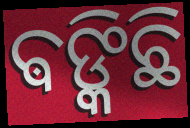
ଵଙ୍କିଛି